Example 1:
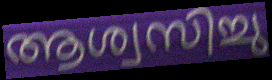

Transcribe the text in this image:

ആശ്വസിച്ചു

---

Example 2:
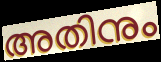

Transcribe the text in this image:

അതിനും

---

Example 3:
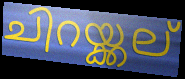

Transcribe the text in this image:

ചിറയ്ക്കല്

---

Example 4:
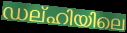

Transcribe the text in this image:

ഡല്ഹിയിലെ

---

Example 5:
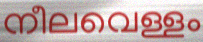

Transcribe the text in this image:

നീലവെള്ളം